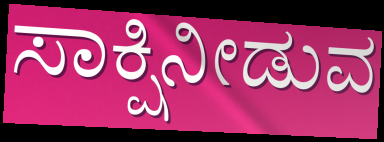
ಸಾಕ್ಷಿನೀಡುವ